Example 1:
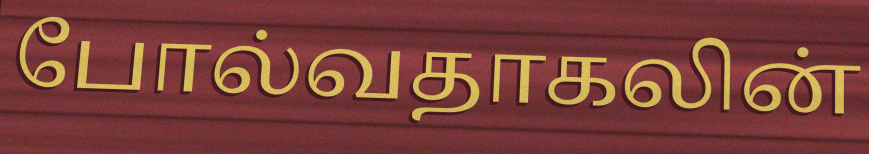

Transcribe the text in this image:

போல்வதாகலின்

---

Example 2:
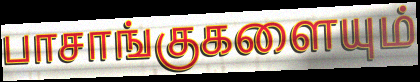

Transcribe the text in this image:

பாசாங்குகளையும்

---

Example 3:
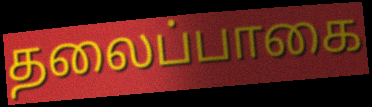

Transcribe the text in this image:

தலைப்பாகை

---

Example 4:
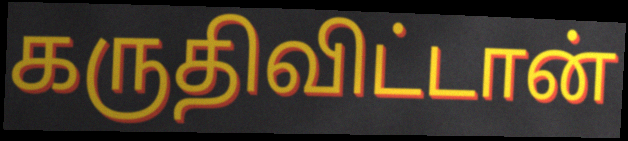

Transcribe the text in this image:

கருதிவிட்டான்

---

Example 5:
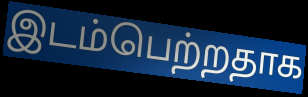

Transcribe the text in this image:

இடம்பெற்றதாக